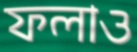
ফলাও